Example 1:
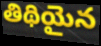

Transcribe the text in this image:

తిథియైన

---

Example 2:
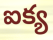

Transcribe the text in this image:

ఐక్య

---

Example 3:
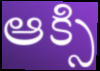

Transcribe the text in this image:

ఆక్సి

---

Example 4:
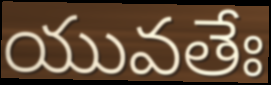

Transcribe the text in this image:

యువతేః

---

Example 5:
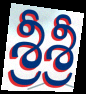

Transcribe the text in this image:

శ్రీశ్రీ